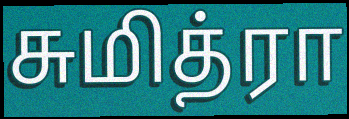
சுமித்ரா